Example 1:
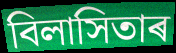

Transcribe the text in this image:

বিলাসিতাৰ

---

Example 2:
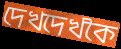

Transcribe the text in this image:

দেখদেখকৈ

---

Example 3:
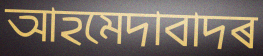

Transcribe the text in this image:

আহমেদাবাদৰ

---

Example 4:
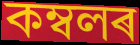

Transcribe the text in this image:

কম্বলৰ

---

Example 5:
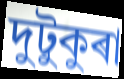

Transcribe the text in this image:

দুটুকুৰা